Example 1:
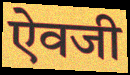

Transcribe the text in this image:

ऐवजी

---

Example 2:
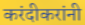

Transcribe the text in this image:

करंदीकरांनी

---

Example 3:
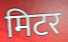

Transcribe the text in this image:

मिटर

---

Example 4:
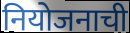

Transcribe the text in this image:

नियोजनाची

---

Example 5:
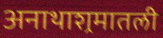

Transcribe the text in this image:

अनाथाश्रमातली